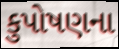
કુપોષણના